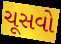
ચૂસવો